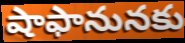
షాఫానునకు